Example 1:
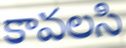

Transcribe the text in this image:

కావలసి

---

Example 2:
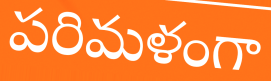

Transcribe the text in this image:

పరిమళంగా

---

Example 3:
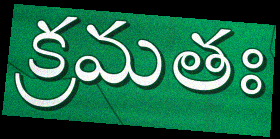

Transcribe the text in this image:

క్రమతః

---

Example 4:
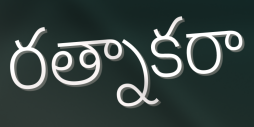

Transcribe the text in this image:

రత్నాకరా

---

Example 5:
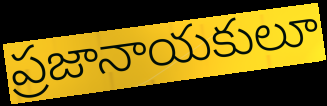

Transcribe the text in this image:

ప్రజానాయకులూ